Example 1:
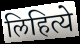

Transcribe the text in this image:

लिहित्ये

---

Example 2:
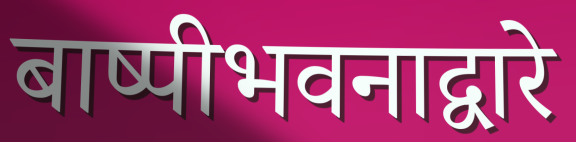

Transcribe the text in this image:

बाष्पीभवनाद्वारे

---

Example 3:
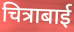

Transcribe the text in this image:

चित्राबाई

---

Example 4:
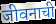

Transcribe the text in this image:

जीवनाची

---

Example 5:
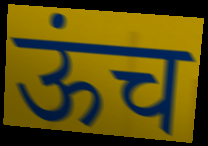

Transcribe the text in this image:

ऊंच